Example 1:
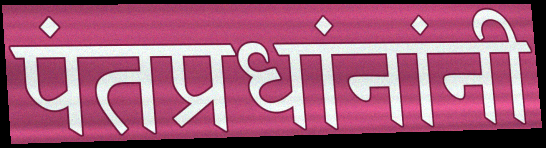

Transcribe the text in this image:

पंतप्रधांनांनी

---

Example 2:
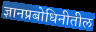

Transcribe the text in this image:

ज्ञानप्रबोधिनीतील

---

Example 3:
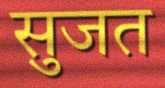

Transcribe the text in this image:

सुजत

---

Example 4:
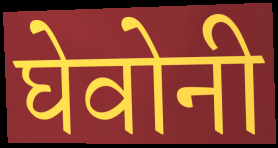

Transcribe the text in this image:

घेवोनी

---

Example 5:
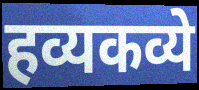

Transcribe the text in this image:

हव्यकव्ये